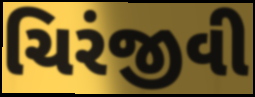
ચિરંજીવી